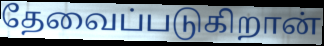
தேவைப்படுகிறான்